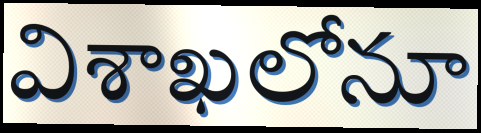
విశాఖలోనూ